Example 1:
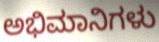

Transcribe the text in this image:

ಅಭಿಮಾನಿಗಳು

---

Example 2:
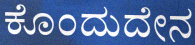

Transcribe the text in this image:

ಕೊಂದುದೇನ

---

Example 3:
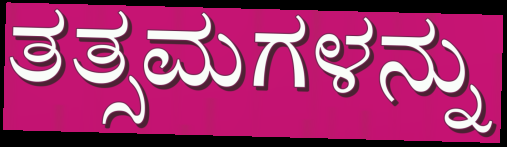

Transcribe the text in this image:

ತತ್ಸಮಗಳನ್ನು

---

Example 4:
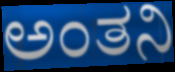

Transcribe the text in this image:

ಅಂತನಿ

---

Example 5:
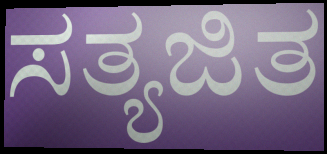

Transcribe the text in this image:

ಸತ್ಯಜಿತ